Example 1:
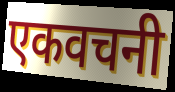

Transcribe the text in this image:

एकवचनी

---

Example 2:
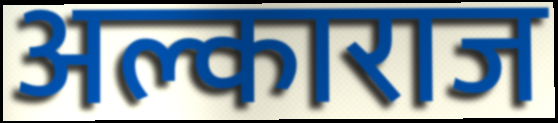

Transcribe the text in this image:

अल्काराज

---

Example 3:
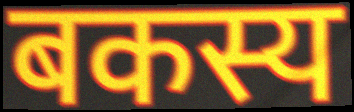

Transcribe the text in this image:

बकस्य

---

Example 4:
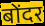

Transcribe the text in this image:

बोंदर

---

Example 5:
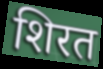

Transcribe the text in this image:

शिरत